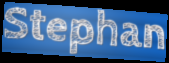
Stephan